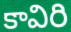
కావిరి